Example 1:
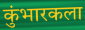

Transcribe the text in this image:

कुंभारकला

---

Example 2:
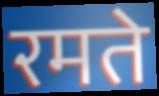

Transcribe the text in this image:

रमते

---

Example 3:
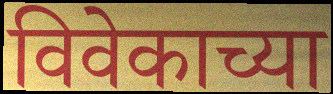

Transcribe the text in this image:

विवेकाच्या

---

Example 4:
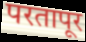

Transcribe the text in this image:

परतापूर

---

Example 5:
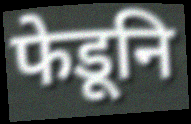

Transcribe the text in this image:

फेडूनि